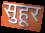
सुहूर